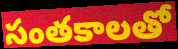
సంతకాలతో